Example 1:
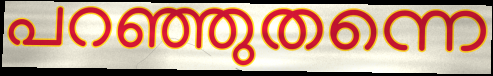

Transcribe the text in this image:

പറഞ്ഞുതന്നെ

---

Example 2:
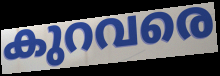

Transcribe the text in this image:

കുറവരെ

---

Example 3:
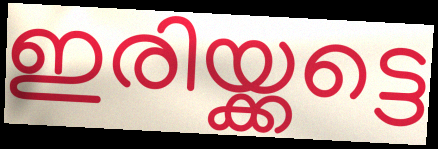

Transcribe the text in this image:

ഇരിയ്ക്കട്ടെ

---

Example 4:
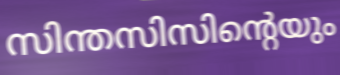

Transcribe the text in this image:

സിന്തസിസിന്റെയും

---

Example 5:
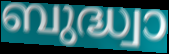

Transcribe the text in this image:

ബുദ്ധ്വാ